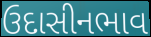
ઉદાસીનભાવ